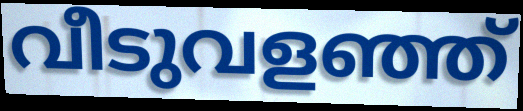
വീടുവളഞ്ഞ്